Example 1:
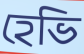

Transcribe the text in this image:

হেভি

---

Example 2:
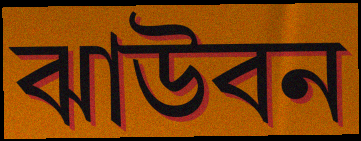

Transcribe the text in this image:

ঝাউবন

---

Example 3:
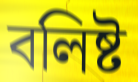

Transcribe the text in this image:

বলিষ্ট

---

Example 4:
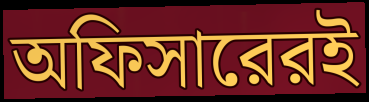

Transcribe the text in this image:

অফিসারেরই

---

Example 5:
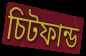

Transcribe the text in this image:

চিটফান্ড